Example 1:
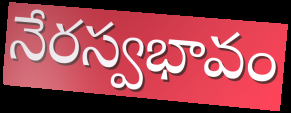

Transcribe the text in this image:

నేరస్వభావం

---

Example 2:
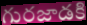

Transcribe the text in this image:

గురజాడకి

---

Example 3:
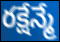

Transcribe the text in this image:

రక్షేన్మే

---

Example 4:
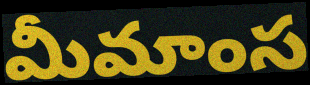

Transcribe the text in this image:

మీమాంస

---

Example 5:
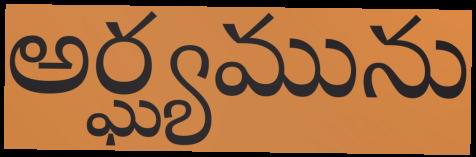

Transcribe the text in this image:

అర్ఘ్యమును